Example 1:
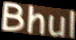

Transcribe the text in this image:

Bhul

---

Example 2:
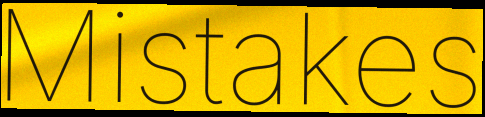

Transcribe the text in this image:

Mistakes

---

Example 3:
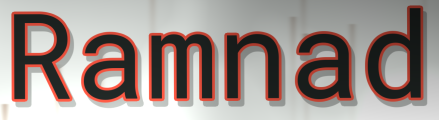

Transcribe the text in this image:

Ramnad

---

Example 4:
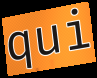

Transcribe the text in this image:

qui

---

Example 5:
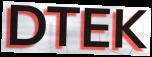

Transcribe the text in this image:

DTEK